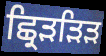
ਛ੍ਰਿੜੜਿੜ